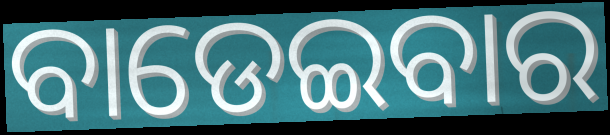
ବାଡେଇବାର